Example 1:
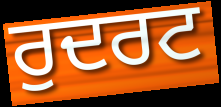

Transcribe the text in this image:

ਰੁਦਰਟ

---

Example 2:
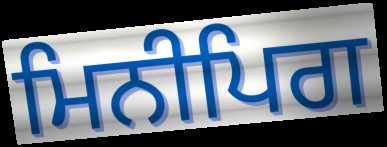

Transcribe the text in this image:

ਮਿਨੀਪਿਗ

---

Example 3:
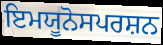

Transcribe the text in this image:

ਇਮਯੂਨੋਸਪਰਸ਼ਨ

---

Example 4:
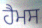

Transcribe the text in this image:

ਹੈਮਸ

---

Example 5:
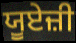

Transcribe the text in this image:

ਯੂਏਜ਼ੀ